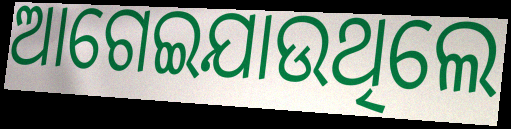
ଆଗେଇଯାଉଥିଲେ